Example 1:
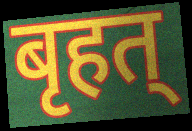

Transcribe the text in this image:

बृहत्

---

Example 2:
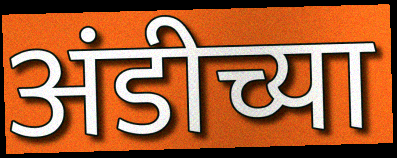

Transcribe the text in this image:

अंडीच्या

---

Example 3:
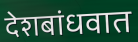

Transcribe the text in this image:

देशबांधवात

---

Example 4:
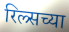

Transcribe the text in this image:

रिल्सच्या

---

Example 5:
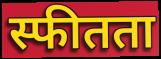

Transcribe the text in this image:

स्फीतता